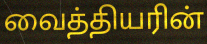
வைத்தியரின்